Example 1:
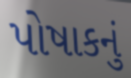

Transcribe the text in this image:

પોષાકનું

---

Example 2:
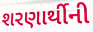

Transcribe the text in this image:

શરણાર્થીની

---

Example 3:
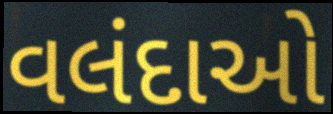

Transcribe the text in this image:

વલંદાઓ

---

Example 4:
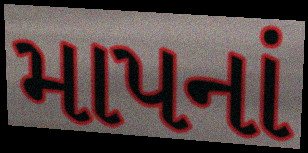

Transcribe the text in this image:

માપનાં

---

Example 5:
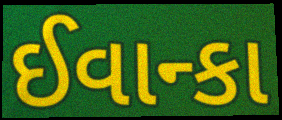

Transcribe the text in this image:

ઈવાન્કા